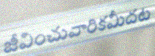
జీవించువారికమీదట